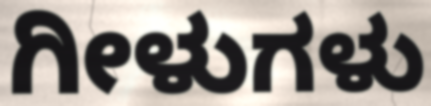
ಗೀಳುಗಳು